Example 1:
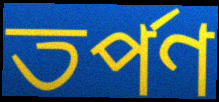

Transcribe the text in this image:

তর্পণ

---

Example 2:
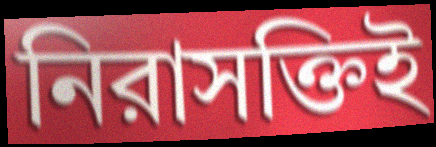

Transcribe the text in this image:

নিরাসক্তিই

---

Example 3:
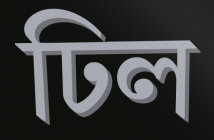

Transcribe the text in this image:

ঢিল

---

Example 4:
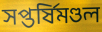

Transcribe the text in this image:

সপ্তর্ষিমণ্ডল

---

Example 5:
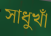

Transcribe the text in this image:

সাধুখাঁ